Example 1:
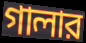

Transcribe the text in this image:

গালার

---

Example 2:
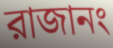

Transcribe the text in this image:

রাজানং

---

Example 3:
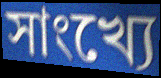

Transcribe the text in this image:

সাংখ্যে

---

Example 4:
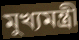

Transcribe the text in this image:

মুখ্য়মন্ত্রী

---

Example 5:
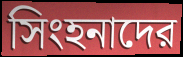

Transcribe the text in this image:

সিংহনাদের